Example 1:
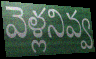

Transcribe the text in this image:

వెళ్లనివ్వ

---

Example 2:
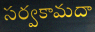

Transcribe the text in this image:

సర్వకామదా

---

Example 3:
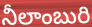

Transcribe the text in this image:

నీలాంబురి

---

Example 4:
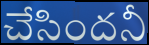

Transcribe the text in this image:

చేసిందనీ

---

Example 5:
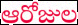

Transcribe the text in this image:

ఆరోజుల